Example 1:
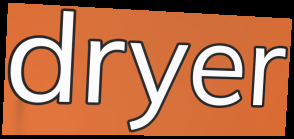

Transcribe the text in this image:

dryer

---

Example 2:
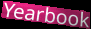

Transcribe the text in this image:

Yearbook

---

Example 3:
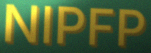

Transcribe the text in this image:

NIPFP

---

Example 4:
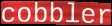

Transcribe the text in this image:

cobbler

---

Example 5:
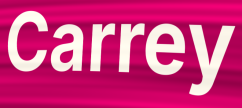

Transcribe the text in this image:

Carrey